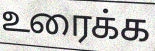
உரைக்க